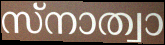
സ്നാത്വാ